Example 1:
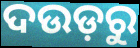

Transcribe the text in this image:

ଦଉଡ଼ରୁ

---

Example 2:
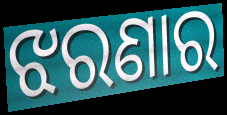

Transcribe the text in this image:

ଝରଣାର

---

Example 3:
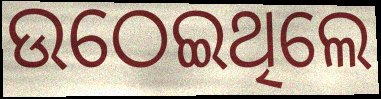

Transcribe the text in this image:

ଉଠେଇଥିଲେ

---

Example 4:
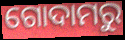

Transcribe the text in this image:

ଗୋଦାମରୁ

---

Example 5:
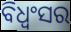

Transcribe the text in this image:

ବିଧ୍ୱଂସର